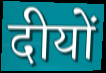
दीयों